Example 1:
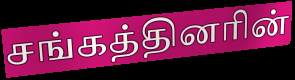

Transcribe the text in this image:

சங்கத்தினரின்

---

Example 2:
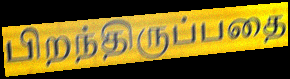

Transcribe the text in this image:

பிறந்திருப்பதை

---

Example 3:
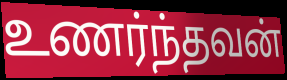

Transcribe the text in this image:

உணர்ந்தவன்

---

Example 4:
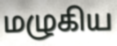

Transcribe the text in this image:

மழுகிய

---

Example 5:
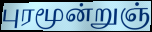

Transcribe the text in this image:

புரமூன்றுஞ்